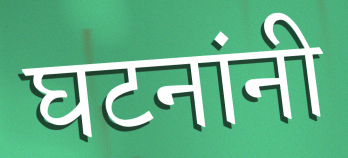
घटनांनी